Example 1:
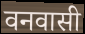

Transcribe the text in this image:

वनवासी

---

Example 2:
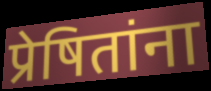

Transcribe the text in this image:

प्रेषितांना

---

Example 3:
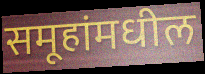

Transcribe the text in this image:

समूहांमधील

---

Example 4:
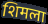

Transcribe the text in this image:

शिमला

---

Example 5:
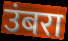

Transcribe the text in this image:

उंबरा